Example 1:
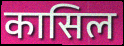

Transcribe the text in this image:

कासिल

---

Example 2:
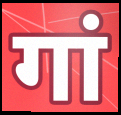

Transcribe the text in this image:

गां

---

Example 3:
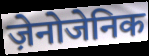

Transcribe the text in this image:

ज़ेनोजेनिक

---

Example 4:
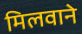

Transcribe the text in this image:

मिलवाने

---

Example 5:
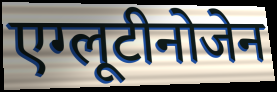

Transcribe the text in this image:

एग्लूटीनोजेन